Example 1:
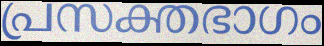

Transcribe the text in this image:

പ്രസക്തഭാഗം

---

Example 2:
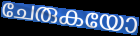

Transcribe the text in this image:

ചേരുകയോ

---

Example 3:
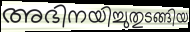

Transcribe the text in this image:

അഭിനയിച്ചുതുടങ്ങിയ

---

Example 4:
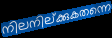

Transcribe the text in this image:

നിലനില്ക്കുകതന്നെ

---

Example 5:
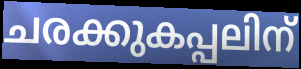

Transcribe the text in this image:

ചരക്കുകപ്പലിന്